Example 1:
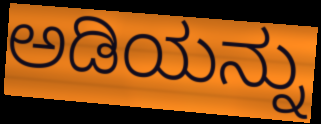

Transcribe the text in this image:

ಅಡಿಯನ್ನು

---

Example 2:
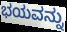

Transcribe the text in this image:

ಭಯವನ್ನು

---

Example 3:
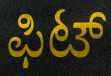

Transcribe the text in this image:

ಫಿಟ್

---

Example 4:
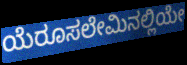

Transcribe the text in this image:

ಯೆರೂಸಲೇಮಿನಲ್ಲಿಯೇ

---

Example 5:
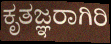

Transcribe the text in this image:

ಕೃತಜ್ಞರಾಗಿರಿ